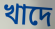
খাদে